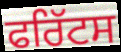
ਫਰਿੱਟਸ